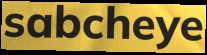
sabcheye